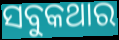
ସବୁକଥାର